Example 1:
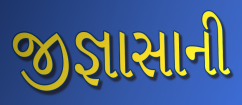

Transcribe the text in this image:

જીજ્ઞાસાની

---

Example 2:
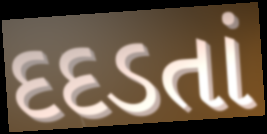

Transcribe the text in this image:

દદડતાં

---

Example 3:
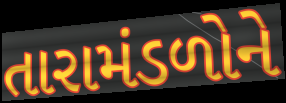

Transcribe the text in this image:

તારામંડળોને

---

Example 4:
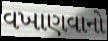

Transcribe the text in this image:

વખાણવાનો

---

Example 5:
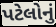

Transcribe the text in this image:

પટેલોનું